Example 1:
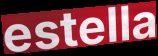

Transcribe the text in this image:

estella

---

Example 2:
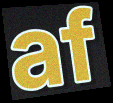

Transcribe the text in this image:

af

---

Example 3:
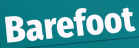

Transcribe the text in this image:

Barefoot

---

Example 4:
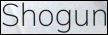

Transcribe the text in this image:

Shogun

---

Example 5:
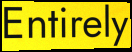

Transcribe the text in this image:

Entirely